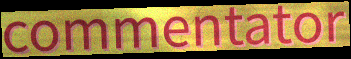
commentator